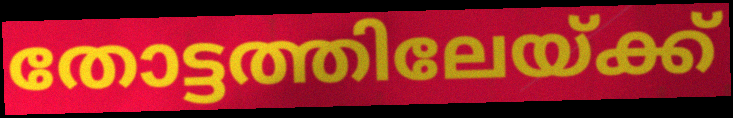
തോട്ടത്തിലേയ്ക്ക്